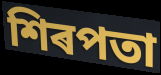
শিৰপতা